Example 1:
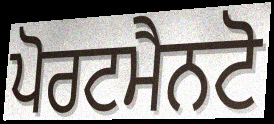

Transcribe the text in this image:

ਪੋਰਟਮੈਨਟੋ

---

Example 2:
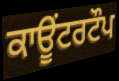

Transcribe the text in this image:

ਕਾਊਂਟਰਟੌਪ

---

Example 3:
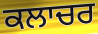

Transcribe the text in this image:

ਕਲਾਚਰ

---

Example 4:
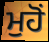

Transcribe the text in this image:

ਮੁਹੋਂ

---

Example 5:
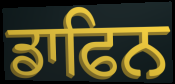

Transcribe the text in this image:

ਡਾਫਿਨ